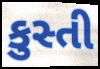
કુસ્તી